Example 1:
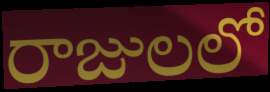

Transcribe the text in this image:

రాజులలో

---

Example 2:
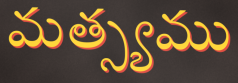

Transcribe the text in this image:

మత్స్యము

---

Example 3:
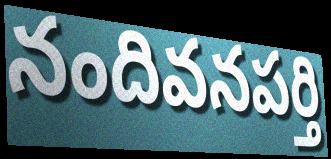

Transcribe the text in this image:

నందివనపర్తి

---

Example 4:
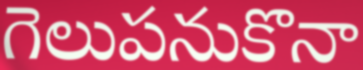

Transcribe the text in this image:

గెలుపనుకొనా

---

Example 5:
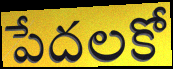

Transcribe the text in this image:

పేదలకో